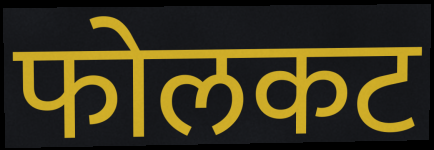
फोलकट